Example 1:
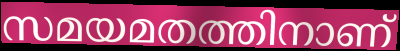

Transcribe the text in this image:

സമയമതത്തിനാണ്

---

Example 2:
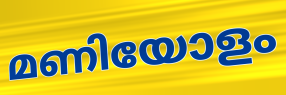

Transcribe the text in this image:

മണിയോളം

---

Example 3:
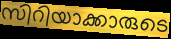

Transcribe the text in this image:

സിറിയാക്കാരുടെ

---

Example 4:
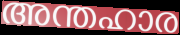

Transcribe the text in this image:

അന്തഹാര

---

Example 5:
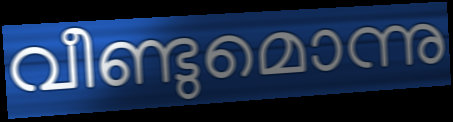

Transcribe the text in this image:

വീണ്ടുമൊന്നു